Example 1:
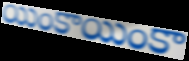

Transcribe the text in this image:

యింకాయింకా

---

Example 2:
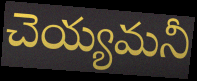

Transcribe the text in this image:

చెయ్యమనీ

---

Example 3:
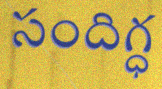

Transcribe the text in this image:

సందిగ్ధ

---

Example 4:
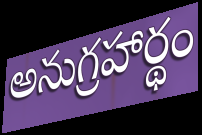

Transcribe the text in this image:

అనుగ్రహార్థం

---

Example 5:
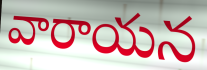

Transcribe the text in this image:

వారాయన